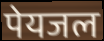
पेयजल